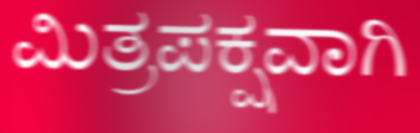
ಮಿತ್ರಪಕ್ಷವಾಗಿ